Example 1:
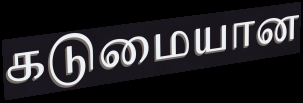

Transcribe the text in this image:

கடுமையான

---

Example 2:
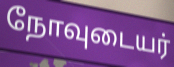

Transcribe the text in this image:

நோவுடையர்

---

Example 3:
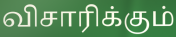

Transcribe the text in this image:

விசாரிக்கும்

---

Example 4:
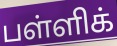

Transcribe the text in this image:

பள்ளிக்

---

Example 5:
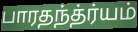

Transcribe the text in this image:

பாரதந்த்ர்யம்